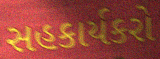
સહકાર્યકરો